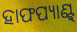
ହାଫପ୍ୟାଣ୍ଟ୍